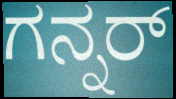
ಗನ್ನರ್